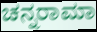
ಚನ್ನರಾಮಾ